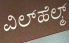
ವಿಲ್‌ಹೆಲ್ಮ್